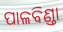
ପାଳବିଣ୍ଡା